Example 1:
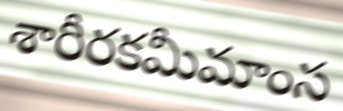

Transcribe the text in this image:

శారీరకమీమాంస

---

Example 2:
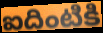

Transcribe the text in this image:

ఐదింటికి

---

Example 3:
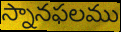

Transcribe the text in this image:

స్నానఫలము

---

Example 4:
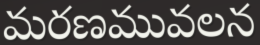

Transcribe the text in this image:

మరణమువలన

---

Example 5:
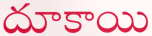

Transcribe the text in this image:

దూకాయి